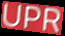
UPR